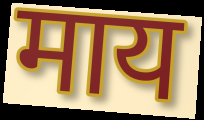
माय